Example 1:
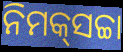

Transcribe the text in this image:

ନିମକ୍‍ସଚ୍ଚା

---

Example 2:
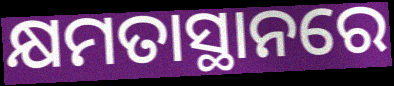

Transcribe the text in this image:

କ୍ଷମତାସ୍ଥାନରେ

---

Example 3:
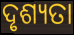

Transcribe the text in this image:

ଦୃଶ୍ୟତା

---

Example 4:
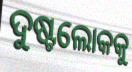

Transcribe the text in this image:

ଦୁଷ୍ଟଲୋକକୁ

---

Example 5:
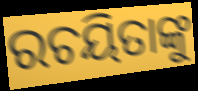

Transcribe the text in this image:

ରଚୟିତାଙ୍କୁ